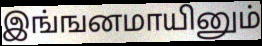
இங்ஙனமாயினும்